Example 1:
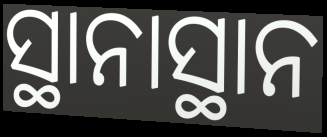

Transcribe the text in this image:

ସ୍ଥାନାସ୍ଥାନ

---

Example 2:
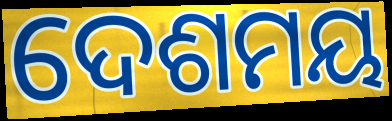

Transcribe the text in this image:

ଦେଶମୟ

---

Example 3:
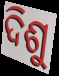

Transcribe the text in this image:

ଦିଶୁ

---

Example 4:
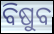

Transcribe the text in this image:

ବିଷୁବ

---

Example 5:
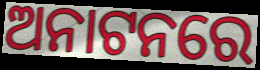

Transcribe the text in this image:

ଅନାଟନରେ